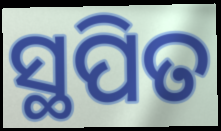
ସ୍ଥପିତ